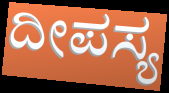
ದೀಪಸ್ಯ